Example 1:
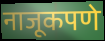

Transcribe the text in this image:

नाजूकपणे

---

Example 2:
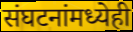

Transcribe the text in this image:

संघटनांमध्येही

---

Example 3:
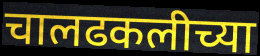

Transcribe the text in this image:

चालढकलीच्या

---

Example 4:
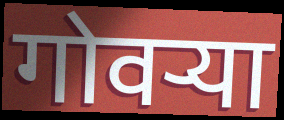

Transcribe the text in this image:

गोवर्‍या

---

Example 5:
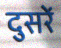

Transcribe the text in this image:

दुसरें